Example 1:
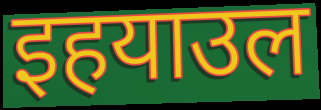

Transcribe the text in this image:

इहयाउल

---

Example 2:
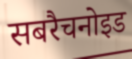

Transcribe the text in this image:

सबरैचनोइड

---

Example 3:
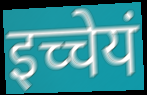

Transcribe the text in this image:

इच्चेयं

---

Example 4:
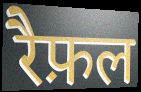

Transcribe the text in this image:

रैफ़ल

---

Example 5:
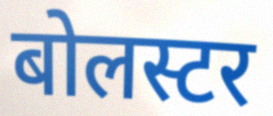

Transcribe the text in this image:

बोलस्टर